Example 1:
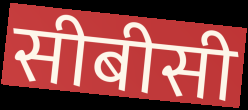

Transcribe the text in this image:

सीबीसी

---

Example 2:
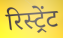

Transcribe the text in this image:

रिस्ट्रेंट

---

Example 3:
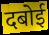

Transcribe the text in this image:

दबोई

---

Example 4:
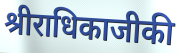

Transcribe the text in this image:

श्रीराधिकाजीकी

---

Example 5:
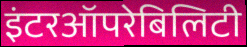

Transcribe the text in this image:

इंटरऑपरेबिलिटी